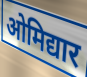
ओमिद्यार